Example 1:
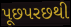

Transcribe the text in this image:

પૂછપરછથી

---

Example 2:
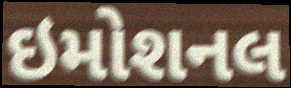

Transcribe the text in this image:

ઇમોશનલ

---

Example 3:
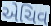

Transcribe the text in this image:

એચિવ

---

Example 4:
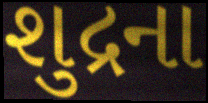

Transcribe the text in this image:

શુદ્રના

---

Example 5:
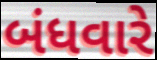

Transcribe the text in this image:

બંધવારે